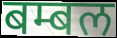
बम्बल